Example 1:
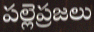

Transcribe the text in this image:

పల్లెప్రజలు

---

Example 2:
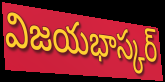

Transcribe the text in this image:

విజయభాస్కర్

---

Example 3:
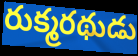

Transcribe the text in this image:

రుక్మరథుడు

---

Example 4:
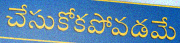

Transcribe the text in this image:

చేసుకోకపోవడమే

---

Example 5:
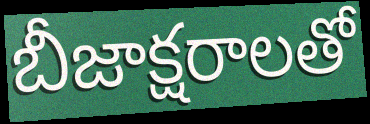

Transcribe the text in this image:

బీజాక్షరాలతో